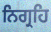
ਨਿਗ੍ਰਹਿ